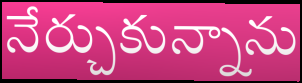
నేర్చుకున్నాను